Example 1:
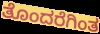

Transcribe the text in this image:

ತೊಂದರೆಗಿಂತ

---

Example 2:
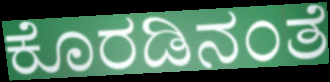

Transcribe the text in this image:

ಕೊರಡಿನಂತೆ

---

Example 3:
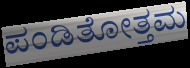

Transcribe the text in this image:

ಪಂಡಿತೋತ್ತಮ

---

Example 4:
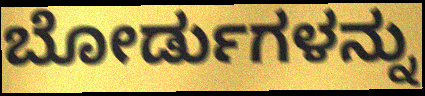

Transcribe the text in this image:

ಬೋರ್ಡುಗಳನ್ನು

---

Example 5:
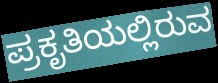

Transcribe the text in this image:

ಪ್ರಕೃತಿಯಲ್ಲಿರುವ